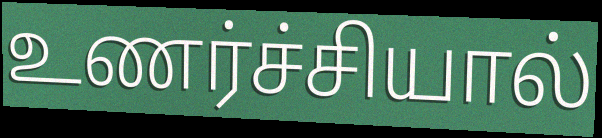
உணர்ச்சியால்